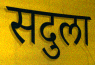
सदुला